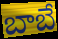
బాబే